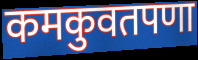
कमकुवतपणा